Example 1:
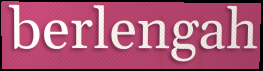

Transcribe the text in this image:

berlengah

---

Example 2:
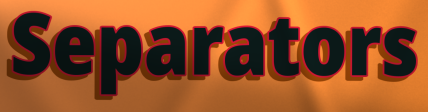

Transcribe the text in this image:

Separators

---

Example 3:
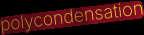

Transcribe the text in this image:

polycondensation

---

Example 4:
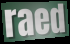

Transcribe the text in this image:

raed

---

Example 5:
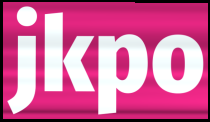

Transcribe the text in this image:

jkpo